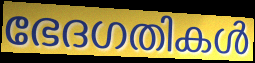
ഭേദഗതികൾ